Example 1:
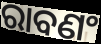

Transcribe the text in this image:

ରାବଣଂ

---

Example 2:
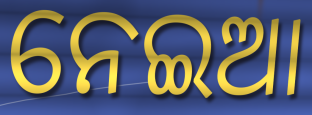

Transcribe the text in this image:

ନେଇଆ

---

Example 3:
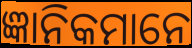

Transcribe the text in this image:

ଜ୍ଞାନିକମାନେ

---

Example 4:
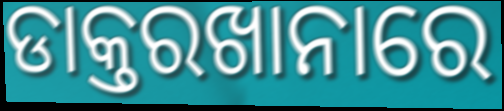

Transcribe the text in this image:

ଡାକ୍ତରଖାନାରେ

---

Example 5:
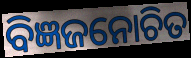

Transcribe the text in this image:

ବିଜ୍ଞଜନୋଚିତ